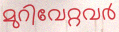
മുറിവേറ്റവർ